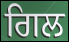
ਗਿਲ